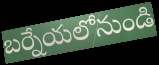
బర్నేయలోనుండి